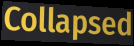
Collapsed